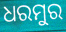
ଧରମୁର